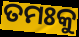
ତମଃକୁ